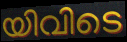
യിവിടെ